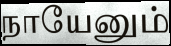
நாயேனும்